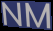
NM